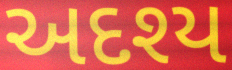
અદશ્ય